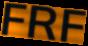
FRF